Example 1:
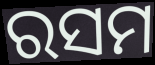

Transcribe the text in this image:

ରସମ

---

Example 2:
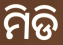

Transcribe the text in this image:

ମିଡି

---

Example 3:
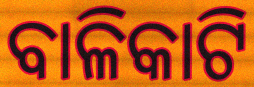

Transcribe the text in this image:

ବାଳିକାଟି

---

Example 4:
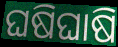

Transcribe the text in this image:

ଘଷିଘାଷି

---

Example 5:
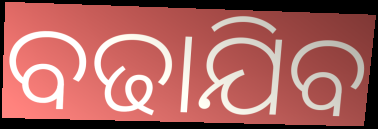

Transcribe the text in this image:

ବଢାଯିବ